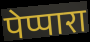
पेप्पारा